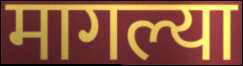
मागल्या